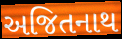
અજિતનાથ